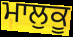
ਮਾਲੁਕੂ